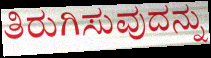
ತಿರುಗಿಸುವುದನ್ನು